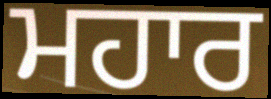
ਮਹਾਰ